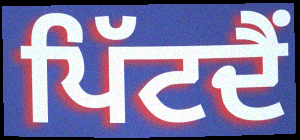
ਪਿੱਟਦੈਂ